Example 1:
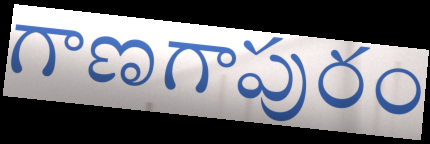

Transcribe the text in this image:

గాణగాపురం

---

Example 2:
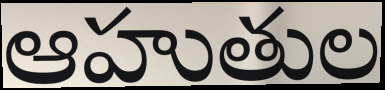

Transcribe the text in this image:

ఆహుతుల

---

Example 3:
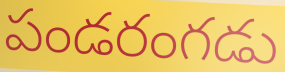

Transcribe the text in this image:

పండరంగడు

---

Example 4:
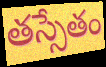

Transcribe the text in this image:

తస్సేతం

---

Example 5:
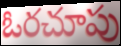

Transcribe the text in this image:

ఓరచూపు